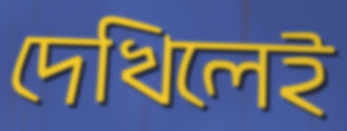
দেখিলেই